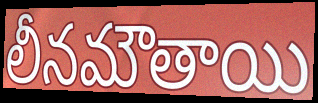
లీనమౌతాయి